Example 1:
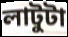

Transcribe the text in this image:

লাটুটা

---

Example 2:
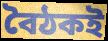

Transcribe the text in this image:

বৈঠকই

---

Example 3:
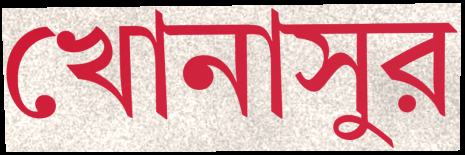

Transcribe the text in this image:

খোনাসুর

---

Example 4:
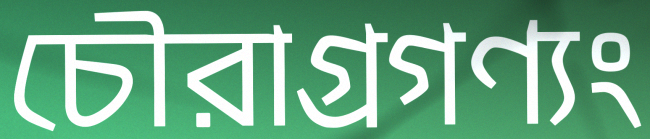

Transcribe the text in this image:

চৌরাগ্রগণ্যং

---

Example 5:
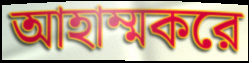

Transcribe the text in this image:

আহাম্মকরে